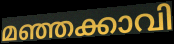
മഞ്ഞക്കാവി